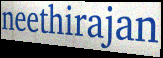
neethirajan